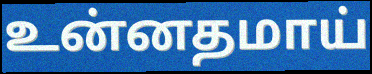
உன்னதமாய்